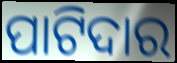
ପାଟିଦାର